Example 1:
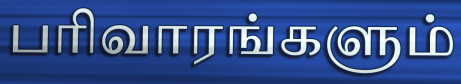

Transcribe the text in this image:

பரிவாரங்களும்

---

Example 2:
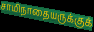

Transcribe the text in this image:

சாமிநாதையருக்குக்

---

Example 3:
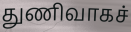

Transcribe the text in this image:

துணிவாகச்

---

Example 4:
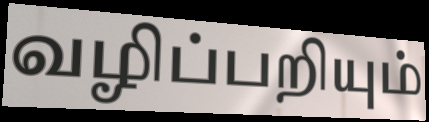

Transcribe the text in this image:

வழிப்பறியும்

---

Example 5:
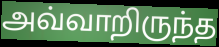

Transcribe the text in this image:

அவ்வாறிருந்த